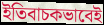
ইতিবাচকভাবেই